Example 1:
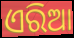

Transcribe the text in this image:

ଏରିଆ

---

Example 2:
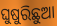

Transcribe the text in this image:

ଘୁଷୁରିଛୁଆ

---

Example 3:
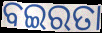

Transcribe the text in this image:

ବଇରତା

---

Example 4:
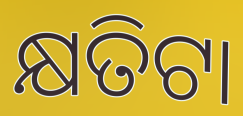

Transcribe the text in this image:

କ୍ଷତିଟା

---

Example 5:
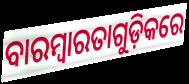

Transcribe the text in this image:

ବାରମ୍ବାରତାଗୁଡ଼ିକରେ